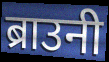
ब्राउनी